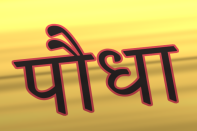
पौधा